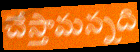
చేస్తామన్నది